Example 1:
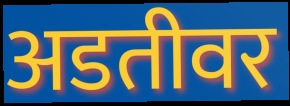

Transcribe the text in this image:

अडतीवर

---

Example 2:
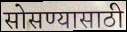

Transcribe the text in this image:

सोसण्यासाठी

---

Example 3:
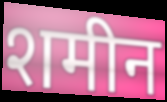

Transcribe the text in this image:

शमीन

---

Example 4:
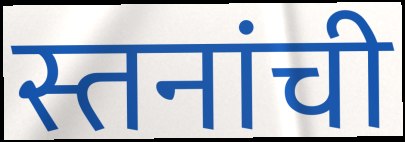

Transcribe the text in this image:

स्तनांची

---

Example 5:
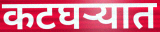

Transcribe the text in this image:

कटघऱ्यात